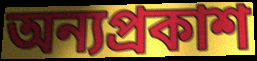
অন্যপ্রকাশ